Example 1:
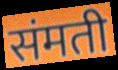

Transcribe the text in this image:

संमती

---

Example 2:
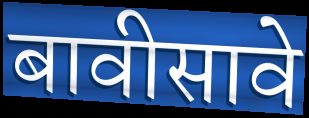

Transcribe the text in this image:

बावीसावे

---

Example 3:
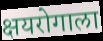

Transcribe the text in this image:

क्षयरोगाला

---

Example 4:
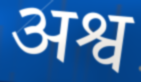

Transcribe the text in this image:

अश्व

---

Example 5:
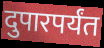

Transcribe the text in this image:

दुपारपर्यंत